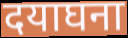
दयाघना